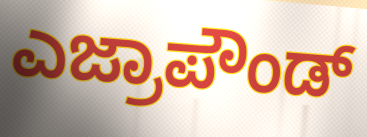
ಎಜ್ರಾಪೌಂಡ್